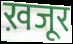
ख़जूर